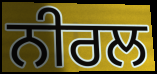
ਨੀਰਲ